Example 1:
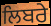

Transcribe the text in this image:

ਲਿਬਰੇ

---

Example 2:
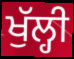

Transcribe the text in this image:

ਖੁੱਲ੍ਹੀ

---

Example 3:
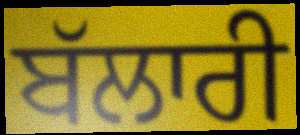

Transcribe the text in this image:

ਬੱਲਾਰੀ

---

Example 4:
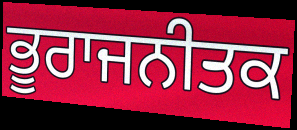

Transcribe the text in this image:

ਭੂਰਾਜਨੀਤਕ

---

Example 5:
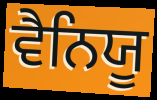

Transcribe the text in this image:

ਵੈਨਿਯੂ